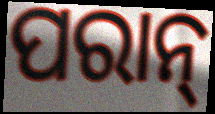
ପରାନ୍